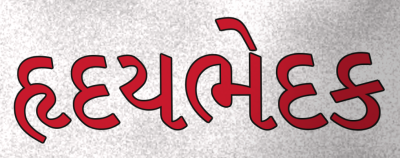
હૃદયભેદક